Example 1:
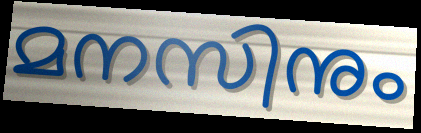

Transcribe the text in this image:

മനസിനും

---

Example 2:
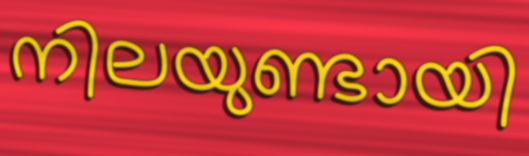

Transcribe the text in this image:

നിലയുണ്ടായി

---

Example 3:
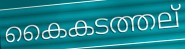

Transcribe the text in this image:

കൈകടത്തല്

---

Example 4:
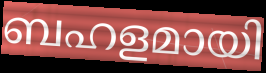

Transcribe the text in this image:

ബഹളമായി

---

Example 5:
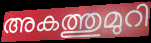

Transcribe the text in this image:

അകത്തുമുറി